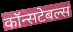
कॉन्सटेबल्स